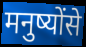
मनुष्योंसे